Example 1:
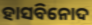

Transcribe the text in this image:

ହାସବିନୋଦ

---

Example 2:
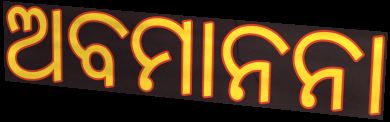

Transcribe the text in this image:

ଅବମାନନା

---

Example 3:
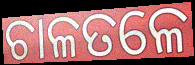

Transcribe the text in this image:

ଚାଳତଳେ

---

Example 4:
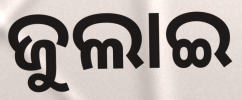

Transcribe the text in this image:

ଜୁଲାଇ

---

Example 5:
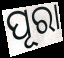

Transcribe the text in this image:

ପୂରା